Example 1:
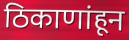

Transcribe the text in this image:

ठिकाणांहून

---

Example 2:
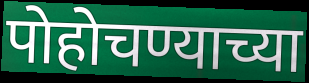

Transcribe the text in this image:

पोहोचण्याच्या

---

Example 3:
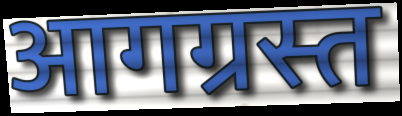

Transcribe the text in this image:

आगग्रस्त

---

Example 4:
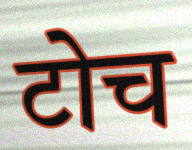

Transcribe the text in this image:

टोच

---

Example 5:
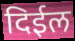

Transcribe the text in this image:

दिईल